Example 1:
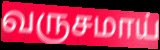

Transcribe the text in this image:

வருசமாய்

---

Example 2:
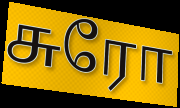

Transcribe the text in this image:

சுரோ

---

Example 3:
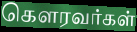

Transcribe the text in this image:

கௌரவர்கள்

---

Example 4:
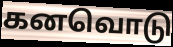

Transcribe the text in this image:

கனவொடு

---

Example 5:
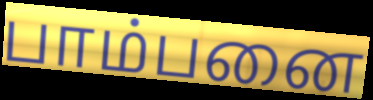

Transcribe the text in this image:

பாம்பனை